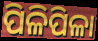
ପିଳିପିଳା